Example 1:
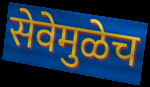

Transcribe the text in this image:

सेवेमुळेच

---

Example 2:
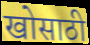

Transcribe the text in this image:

खोसाठी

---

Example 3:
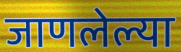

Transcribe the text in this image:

जाणलेल्या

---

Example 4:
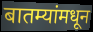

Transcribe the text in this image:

बातम्यांमधून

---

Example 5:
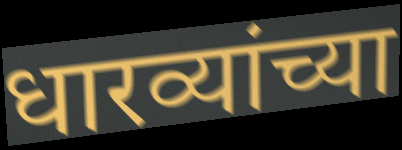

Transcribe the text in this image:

धारव्यांच्या